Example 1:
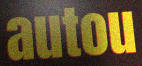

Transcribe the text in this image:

autou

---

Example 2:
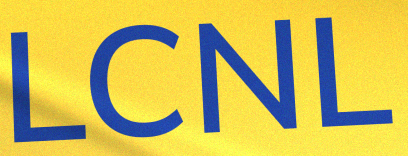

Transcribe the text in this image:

LCNL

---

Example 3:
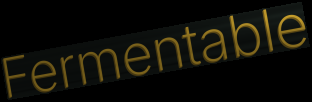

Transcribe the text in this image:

Fermentable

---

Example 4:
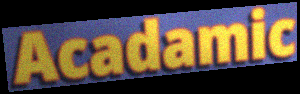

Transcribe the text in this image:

Acadamic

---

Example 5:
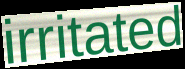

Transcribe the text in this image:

irritated